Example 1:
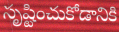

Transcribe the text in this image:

సృష్టించుకోడానికి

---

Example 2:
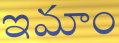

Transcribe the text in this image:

ఇమాం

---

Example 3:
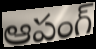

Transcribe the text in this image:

ఆపంగ్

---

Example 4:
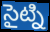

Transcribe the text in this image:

సైట్ని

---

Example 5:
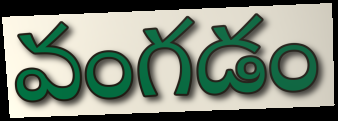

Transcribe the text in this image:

వంగడం